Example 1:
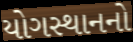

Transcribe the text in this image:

યોગસ્થાનનો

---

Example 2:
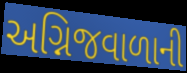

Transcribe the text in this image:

અગ્નિજવાળાની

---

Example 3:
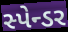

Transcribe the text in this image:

સ્પેન્ડર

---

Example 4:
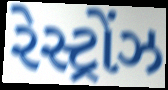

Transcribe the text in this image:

રેસ્ટ્રોંઝ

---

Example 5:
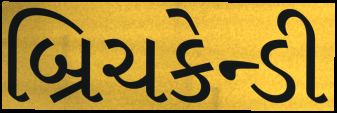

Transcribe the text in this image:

બ્રિચકેન્ડી